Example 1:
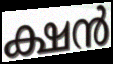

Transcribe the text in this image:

ക്ഷൻ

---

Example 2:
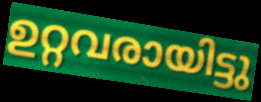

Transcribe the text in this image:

ഉറ്റവരായിട്ടു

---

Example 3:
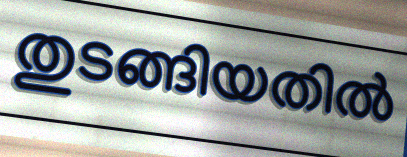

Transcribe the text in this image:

തുടങ്ങിയതിൽ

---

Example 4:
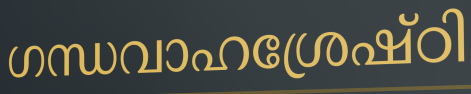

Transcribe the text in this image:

ഗന്ധവാഹശ്രേഷ്ഠി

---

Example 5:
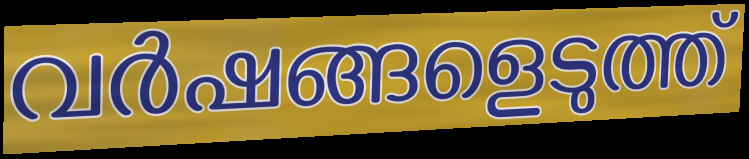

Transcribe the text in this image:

വർഷങ്ങളെടുത്ത്